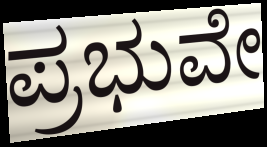
ಪ್ರಭುವೇ